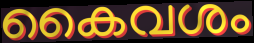
കൈവശം